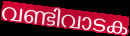
വണ്ടിവാടക